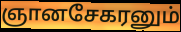
ஞானசேகரனும்